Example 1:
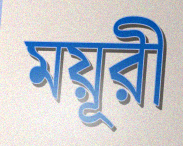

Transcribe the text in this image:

ময়ূরী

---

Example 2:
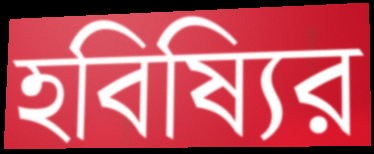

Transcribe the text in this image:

হবিষ্যির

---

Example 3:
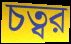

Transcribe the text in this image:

চত্বর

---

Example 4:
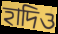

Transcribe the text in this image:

হাদিও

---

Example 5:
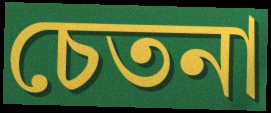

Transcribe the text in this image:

চেতনা